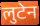
लुटेन